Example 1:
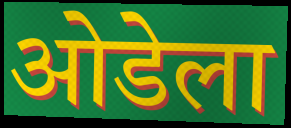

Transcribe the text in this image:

ओडेला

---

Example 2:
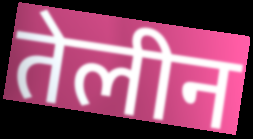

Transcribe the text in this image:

तेलीन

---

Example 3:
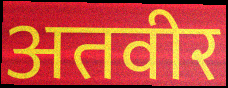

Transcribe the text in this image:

अतवीर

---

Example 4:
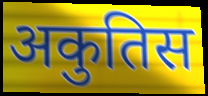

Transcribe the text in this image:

अकुतिस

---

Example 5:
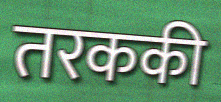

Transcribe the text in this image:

तरककी